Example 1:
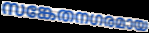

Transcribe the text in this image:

സങ്കേതനഗരമായ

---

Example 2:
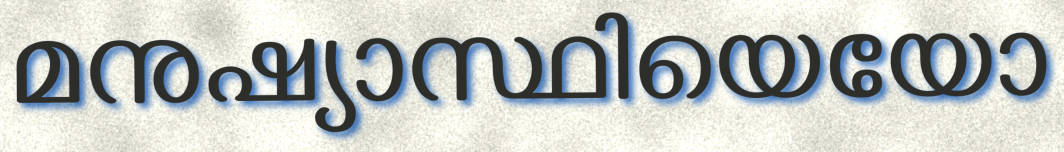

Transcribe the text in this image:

മനുഷ്യാസ്ഥിയെയോ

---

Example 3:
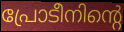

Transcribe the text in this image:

പ്രോടീനിന്റെ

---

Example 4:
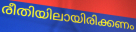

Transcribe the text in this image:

രീതിയിലായിരിക്കണം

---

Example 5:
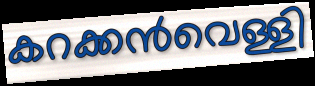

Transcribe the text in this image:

കറക്കൻവെള്ളി